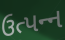
ઉત્પન્‍ન